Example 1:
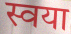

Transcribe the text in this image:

स्वया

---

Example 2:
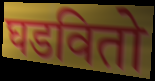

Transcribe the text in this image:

घडवितो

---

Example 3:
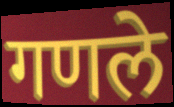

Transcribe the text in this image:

गणले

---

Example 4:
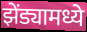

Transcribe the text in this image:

झेंड्यामध्ये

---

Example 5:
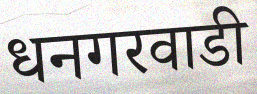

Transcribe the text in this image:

धनगरवाडी